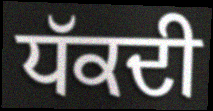
ਧੱਕਦੀ